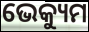
ଭେକ୍ୟୁମ